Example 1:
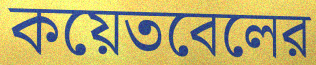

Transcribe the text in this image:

কয়েতবেলের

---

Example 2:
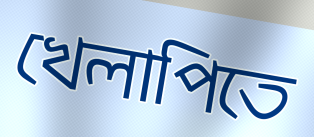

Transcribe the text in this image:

খেলাপিতে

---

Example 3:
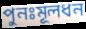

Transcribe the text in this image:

পুনঃমূলধন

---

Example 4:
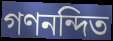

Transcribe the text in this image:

গণনন্দিত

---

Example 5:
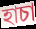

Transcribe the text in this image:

হাচা